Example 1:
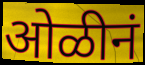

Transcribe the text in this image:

ओळीनं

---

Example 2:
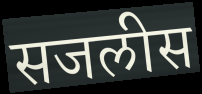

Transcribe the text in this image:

सजलीस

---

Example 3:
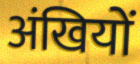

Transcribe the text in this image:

अंखियों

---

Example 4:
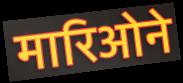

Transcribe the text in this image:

मारिओने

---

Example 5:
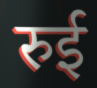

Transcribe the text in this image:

रुई